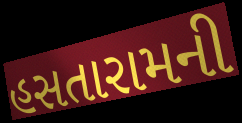
હસતારામની